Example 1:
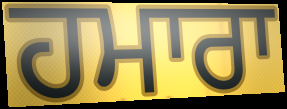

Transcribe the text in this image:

ਹਮਾਰਾ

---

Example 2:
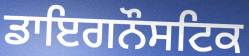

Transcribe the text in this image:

ਡਾਇਗਨੌਸਟਿਕ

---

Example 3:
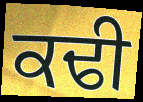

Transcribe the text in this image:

ਕਢੀ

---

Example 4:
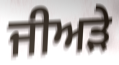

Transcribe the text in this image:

ਜੀਅੜੇ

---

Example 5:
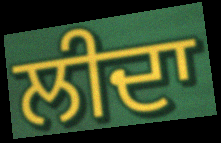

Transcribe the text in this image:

ਲੀਦਾ